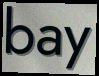
bay